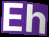
Eh